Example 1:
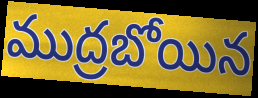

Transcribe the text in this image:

ముద్రబోయిన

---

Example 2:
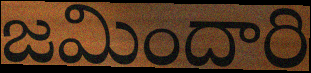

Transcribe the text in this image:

జమిందారి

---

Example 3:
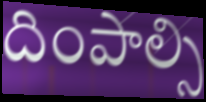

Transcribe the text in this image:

దింపాల్సి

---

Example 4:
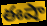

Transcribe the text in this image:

ఈషా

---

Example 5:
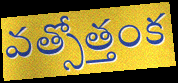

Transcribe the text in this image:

వత్సోత్తంక